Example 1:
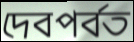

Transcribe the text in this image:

দেবপর্বত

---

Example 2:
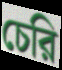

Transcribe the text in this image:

চেরি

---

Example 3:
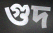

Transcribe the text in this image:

গুদ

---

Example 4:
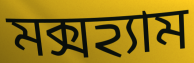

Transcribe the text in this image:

মক্সহ্যাম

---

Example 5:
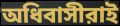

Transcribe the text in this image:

অধিবাসীরাই